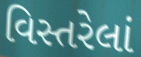
વિસ્તરેલાં